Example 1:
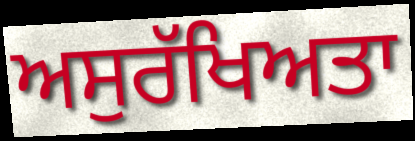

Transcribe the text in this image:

ਅਸੁਰੱਖਿਅਤਾ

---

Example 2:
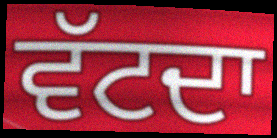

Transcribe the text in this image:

ਵੱਟਦਾ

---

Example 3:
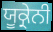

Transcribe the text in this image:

ਯੂਕ੍ਰੇਨੀ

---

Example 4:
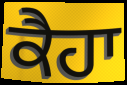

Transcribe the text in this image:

ਕੈਹਾ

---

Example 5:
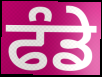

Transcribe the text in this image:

ਫੰਡੇ